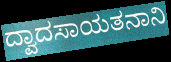
ದ್ವಾದಸಾಯತನಾನಿ